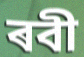
ৰবী